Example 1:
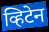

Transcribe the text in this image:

व्हिटेन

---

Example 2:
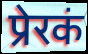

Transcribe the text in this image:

प्रेरकं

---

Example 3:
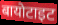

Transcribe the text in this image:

बायोटाइट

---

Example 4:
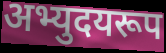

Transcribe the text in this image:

अभ्युदयरूप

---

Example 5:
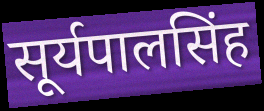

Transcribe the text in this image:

सूर्यपालसिंह